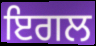
ਇਗਲ